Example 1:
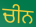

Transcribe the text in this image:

ਚੀਨ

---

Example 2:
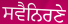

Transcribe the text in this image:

ਸਵੈਨਿਰਣੇ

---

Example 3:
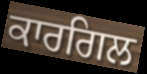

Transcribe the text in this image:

ਕਾਰਗਿਲ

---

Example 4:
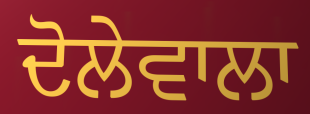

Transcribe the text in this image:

ਦੋਲੇਵਾਲਾ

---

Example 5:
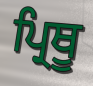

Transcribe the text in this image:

ਪ੍ਰਿਥੂ